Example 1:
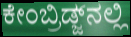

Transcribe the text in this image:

ಕೇಂಬ್ರಿಡ್ಜ್‌ನಲ್ಲಿ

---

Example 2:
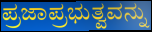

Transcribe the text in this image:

ಪ್ರಜಾಪ್ರಭುತ್ವವನ್ನು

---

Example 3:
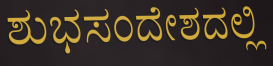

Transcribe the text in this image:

ಶುಭಸಂದೇಶದಲ್ಲಿ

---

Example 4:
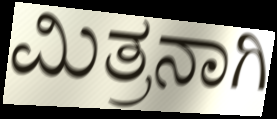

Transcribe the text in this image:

ಮಿತ್ರನಾಗಿ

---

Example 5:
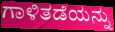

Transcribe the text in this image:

ಗಾಳಿತಡೆಯನ್ನು